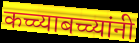
कच्च्याबच्च्यांनी